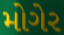
મોગેર